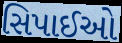
સિપાઈઓ